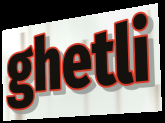
ghetli